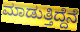
ಮಾಡುತ್ತಿದ್ದೆನೆ